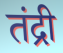
तंद्री